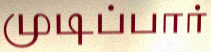
முடிப்பார்